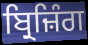
ਬ੍ਰਿਜ਼ਿੰਗ